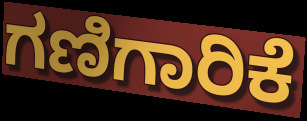
ಗಣಿಗಾರಿಕೆ